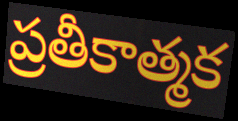
ప్రతీకాత్మక